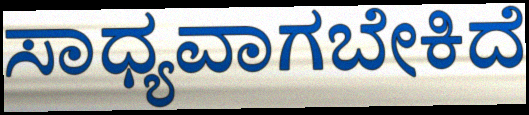
ಸಾಧ್ಯವಾಗಬೇಕಿದೆ